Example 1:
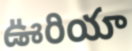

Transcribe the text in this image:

ఊరియా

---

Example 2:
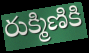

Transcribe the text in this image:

రుక్మిణికి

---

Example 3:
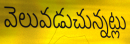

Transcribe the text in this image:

వెలువడుచున్నట్లు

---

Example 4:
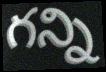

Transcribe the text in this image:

గన్ని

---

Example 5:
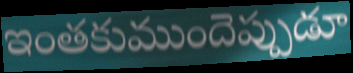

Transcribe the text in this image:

ఇంతకుముందెప్పుడూ